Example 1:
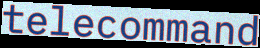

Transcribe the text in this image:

telecommand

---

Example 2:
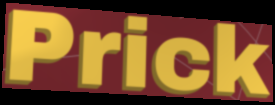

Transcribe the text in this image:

Prick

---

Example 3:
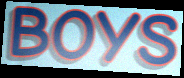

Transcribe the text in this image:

BOYS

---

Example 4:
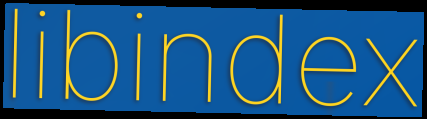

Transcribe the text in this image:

libindex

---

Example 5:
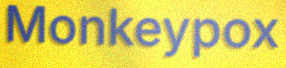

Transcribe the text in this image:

Monkeypox